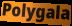
Polygala